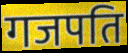
गजपति